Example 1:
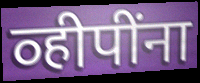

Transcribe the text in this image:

व्हीपींना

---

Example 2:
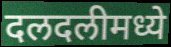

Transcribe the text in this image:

दलदलीमध्ये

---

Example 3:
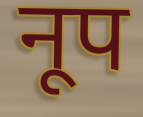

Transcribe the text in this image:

नूप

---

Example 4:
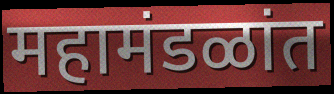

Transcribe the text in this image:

महामंडळांत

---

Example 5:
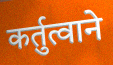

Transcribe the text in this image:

कर्तुत्वाने